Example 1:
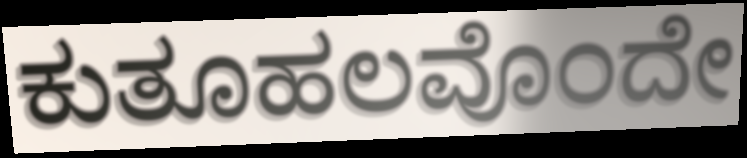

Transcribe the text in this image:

ಕುತೂಹಲವೊಂದೇ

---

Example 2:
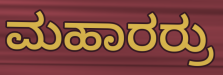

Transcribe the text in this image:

ಮಹಾರರ್ರು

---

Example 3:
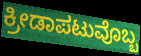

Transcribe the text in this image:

ಕ್ರೀಡಾಪಟುವೊಬ್ಬ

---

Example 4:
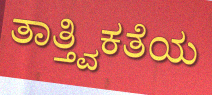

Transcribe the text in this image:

ತಾತ್ತ್ವಿಕತೆಯ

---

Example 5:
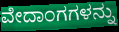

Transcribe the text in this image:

ವೇದಾಂಗಗಳನ್ನು